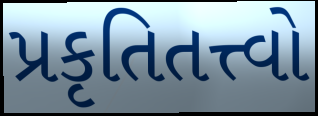
પ્રકૃતિતત્ત્વો